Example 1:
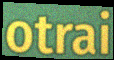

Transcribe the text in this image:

otrai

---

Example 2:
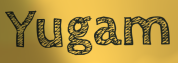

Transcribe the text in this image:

Yugam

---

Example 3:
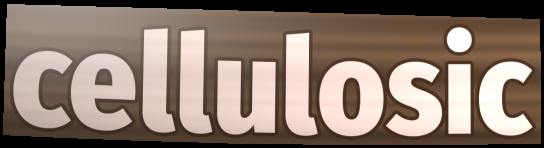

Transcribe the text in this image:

cellulosic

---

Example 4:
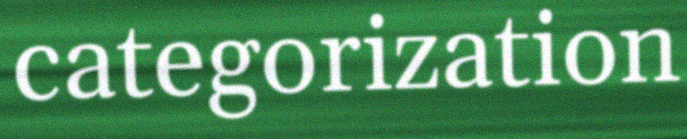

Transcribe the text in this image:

categorization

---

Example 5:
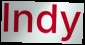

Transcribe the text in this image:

Indy